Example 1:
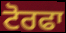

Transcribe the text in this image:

ਟੋਰਫਾ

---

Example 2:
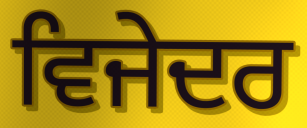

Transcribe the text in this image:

ਵਿਜੇਦਰ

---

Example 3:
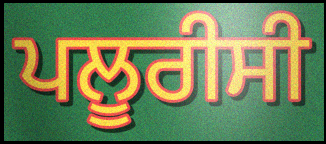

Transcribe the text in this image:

ਪਲੂਰੀਸੀ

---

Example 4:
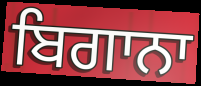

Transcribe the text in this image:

ਬਿਗਾਨਾ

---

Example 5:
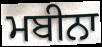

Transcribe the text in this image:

ਮਬੀਨਾ